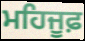
ਮਹਿਜੂਫ਼